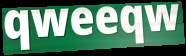
qweeqw